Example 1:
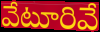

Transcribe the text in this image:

వేటూరివే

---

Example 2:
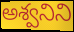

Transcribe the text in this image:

అశ్వనిని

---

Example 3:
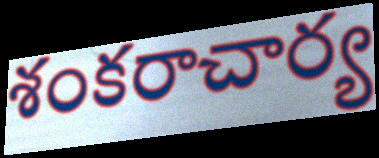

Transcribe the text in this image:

శంకరాచార్య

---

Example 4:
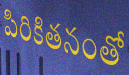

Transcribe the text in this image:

పిరికితనంతో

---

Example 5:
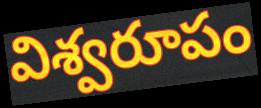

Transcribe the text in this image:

విశ్వరూపం